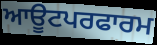
ਆਊਟਪਰਫਾਰਮ